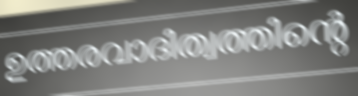
ഉത്തരവാദിത്വത്തിന്റെ